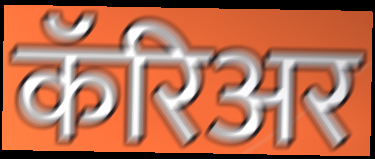
कॅरिअर